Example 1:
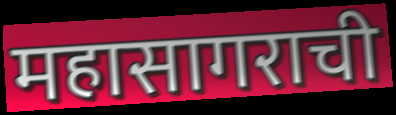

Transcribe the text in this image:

महासागराची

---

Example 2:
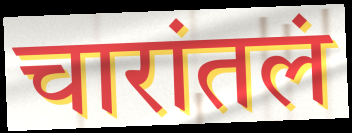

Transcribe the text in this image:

चारांतलं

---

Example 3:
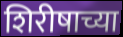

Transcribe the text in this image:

शिरीषाच्या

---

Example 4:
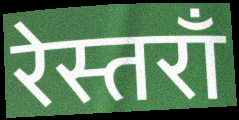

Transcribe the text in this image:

रेस्तराँ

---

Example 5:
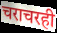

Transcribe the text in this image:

चराचरही